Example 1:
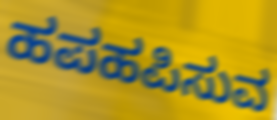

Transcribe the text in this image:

ಹಪಹಪಿಸುವ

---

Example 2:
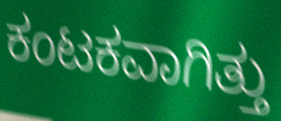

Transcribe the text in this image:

ಕಂಟಕವಾಗಿತ್ತು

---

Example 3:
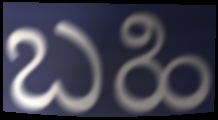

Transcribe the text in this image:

ಬಹಿ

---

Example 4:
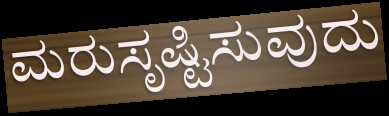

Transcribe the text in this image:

ಮರುಸೃಷ್ಟಿಸುವುದು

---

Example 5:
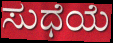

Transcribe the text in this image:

ಸುಧೆಯೆ